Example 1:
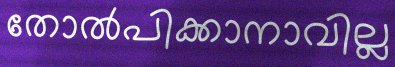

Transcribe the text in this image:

തോൽപിക്കാനാവില്ല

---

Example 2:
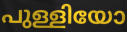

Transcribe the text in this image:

പുള്ളിയോ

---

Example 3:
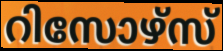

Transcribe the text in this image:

റിസോഴ്സ്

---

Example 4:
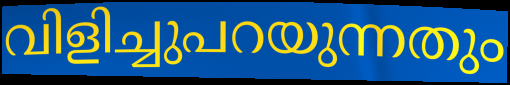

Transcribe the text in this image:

വിളിച്ചുപറയുന്നതും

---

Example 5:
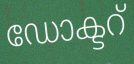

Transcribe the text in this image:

ഡോക്ടറ്